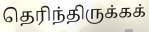
தெரிந்திருக்கக்